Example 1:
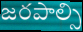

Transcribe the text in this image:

జరపాల్సి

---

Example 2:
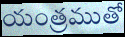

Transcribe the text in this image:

యంత్రముతో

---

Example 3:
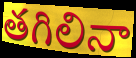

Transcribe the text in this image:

తగిలినా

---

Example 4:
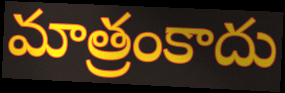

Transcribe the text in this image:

మాత్రంకాదు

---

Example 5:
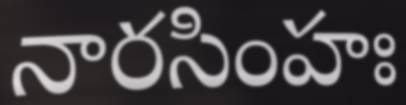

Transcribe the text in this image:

నారసింహః